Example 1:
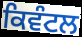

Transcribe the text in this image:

ਕਿਵੰਟਲ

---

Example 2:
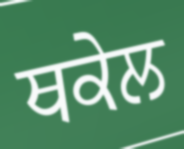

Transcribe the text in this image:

ਥਕੇਲ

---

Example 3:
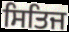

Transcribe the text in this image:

ਸਿਤਿਜ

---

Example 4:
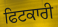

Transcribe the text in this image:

ਫਿਟਕਾਰੀ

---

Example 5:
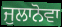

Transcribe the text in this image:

ਜੁਲਾਨੋਵਾ